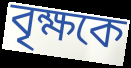
বৃক্ষকে